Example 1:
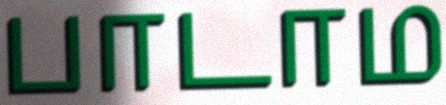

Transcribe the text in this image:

பாடாம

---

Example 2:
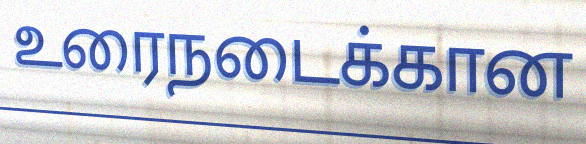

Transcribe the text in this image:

உரைநடைக்கான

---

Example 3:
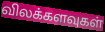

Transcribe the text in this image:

விலக்களவுகள்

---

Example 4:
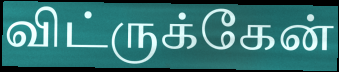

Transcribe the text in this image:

விட்ருக்கேன்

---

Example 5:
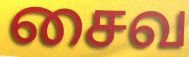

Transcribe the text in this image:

சைவ